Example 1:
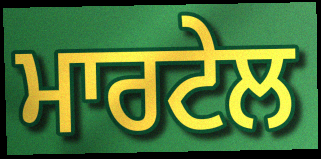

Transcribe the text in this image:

ਮਾਰਟੇਲ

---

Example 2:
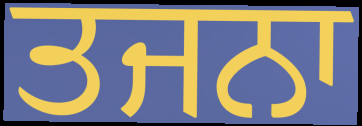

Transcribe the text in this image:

ਤਜਨਾ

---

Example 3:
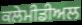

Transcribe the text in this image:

ਕਲੇਮੀਡੀਅਲ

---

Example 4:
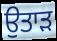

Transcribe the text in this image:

ਉਤਾਡ਼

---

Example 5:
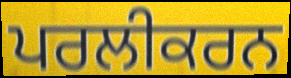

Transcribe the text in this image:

ਪਰਲੀਕਰਨ